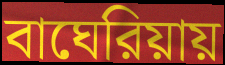
বাঘেরিয়ায়